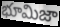
భూమిజా